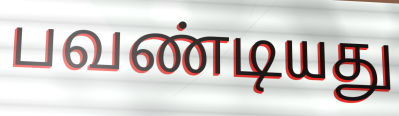
பவண்டியது